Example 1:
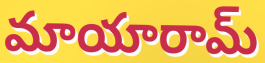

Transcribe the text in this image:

మాయారామ్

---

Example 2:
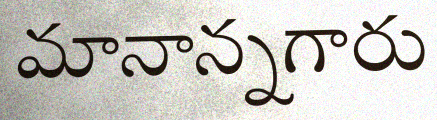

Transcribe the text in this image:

మానాన్నగారు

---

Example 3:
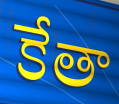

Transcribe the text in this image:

కేతా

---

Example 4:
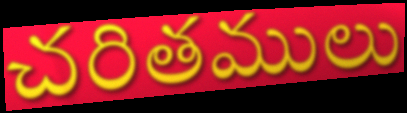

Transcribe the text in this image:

చరితములు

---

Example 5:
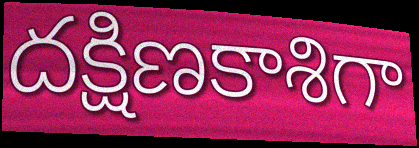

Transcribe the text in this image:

దక్షిణకాశిగా